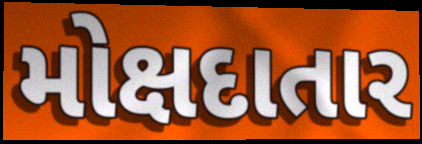
મોક્ષદાતાર